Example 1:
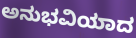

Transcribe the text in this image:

ಅನುಭವಿಯಾದ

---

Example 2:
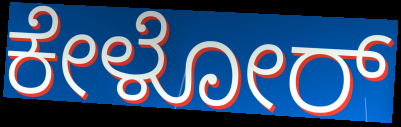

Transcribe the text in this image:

ಕೇಳೋರ್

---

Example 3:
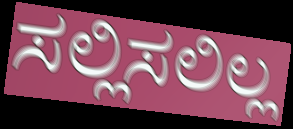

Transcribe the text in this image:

ಸಲ್ಲಿಸಲಿಲ್ಲ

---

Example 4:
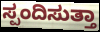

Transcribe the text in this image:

ಸ್ಪಂದಿಸುತ್ತಾ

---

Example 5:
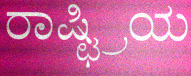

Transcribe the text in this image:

ರಾಷ್ಟ್ರಿಯ